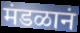
मंडळानं